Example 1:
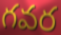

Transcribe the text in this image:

గవర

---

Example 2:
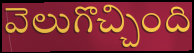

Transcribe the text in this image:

వెలుగొచ్చింది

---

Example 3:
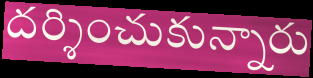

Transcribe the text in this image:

దర్శించుకున్నారు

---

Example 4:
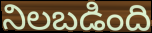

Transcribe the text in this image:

నిలబడింది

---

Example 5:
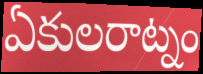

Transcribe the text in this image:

ఏకులరాట్నం